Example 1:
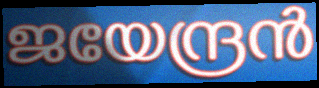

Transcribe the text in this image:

ജയേന്ദ്രൻ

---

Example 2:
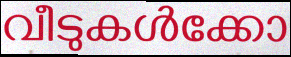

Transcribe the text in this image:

വീടുകൾക്കോ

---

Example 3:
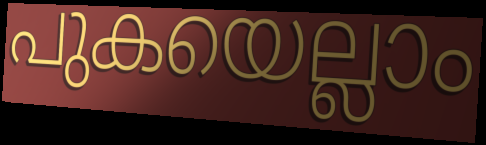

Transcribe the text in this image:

പുകയെല്ലാം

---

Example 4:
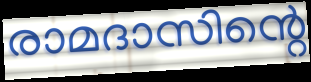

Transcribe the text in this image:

രാമദാസിന്റെ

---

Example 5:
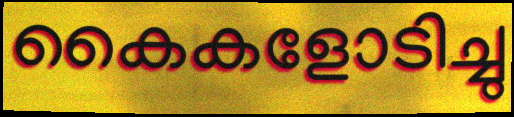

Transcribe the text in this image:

കൈകളോടിച്ചു